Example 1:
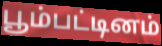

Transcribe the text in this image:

பூம்பட்டினம்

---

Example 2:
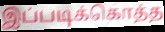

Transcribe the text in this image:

இப்படிக்கொத்த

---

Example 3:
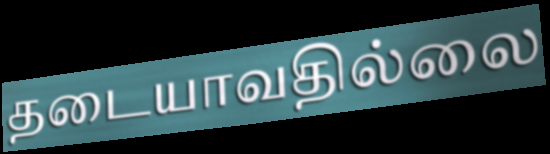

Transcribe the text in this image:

தடையாவதில்லை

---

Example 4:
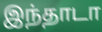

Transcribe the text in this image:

இந்தாடா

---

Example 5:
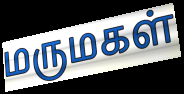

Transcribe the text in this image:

மருமகள்